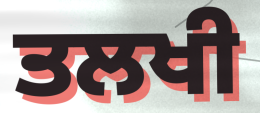
ਤਲਖੀ